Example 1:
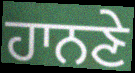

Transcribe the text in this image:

ਹਾਨਣੇ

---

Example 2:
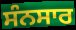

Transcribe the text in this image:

ਸੰਨਸਾਰ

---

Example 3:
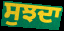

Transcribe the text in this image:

ਸੁਝਦਾ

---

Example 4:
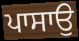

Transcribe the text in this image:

ਪਾਸਾਉ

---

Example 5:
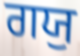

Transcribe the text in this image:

ਗਯੁ